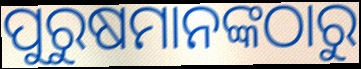
ପୁରୁଷମାନଙ୍କଠାରୁ